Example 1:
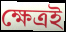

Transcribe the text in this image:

ক্ষেত্রই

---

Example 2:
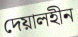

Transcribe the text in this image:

দেয়ালহীন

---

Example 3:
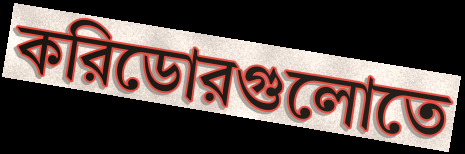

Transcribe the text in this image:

করিডোরগুলোতে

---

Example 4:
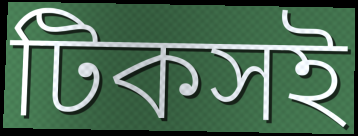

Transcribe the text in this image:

টিকসই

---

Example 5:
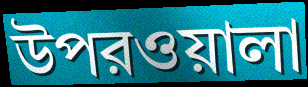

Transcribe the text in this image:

উপরওয়ালা